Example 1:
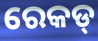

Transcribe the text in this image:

ରେକଡ୍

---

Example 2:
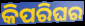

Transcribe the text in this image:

କିପରିଘର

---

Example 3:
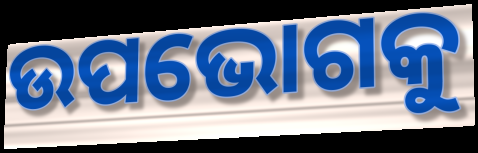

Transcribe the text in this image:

ଉପଭୋଗକୁ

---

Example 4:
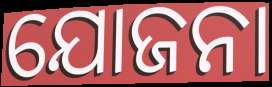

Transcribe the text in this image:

ଯୋଜନା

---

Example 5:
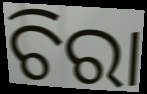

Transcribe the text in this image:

ଚିରା